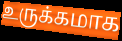
உருக்கமாக